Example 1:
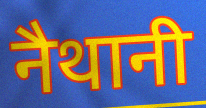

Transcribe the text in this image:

नैथानी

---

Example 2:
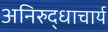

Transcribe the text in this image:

अनिरुद्धाचार्य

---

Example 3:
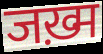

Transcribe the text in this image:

जख़्म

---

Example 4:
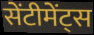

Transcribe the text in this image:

सेंटीमेंट्स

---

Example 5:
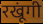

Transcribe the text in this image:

रखूंगी